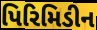
પિરિમિડીન